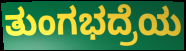
ತುಂಗಭದ್ರೆಯ